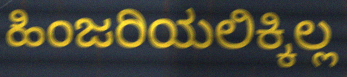
ಹಿಂಜರಿಯಲಿಕ್ಕಿಲ್ಲ